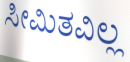
ಸೀಮಿತವಿಲ್ಲ